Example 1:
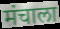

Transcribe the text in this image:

मंचाला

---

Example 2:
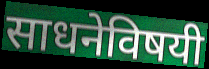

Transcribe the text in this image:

साधनेविषयी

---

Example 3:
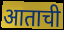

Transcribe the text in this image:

आताची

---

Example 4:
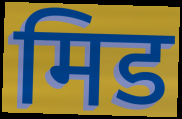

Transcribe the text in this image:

मिड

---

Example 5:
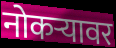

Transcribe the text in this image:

नोकऱ्यावर